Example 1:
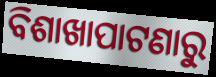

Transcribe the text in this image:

ବିଶାଖାପାଟଣାରୁ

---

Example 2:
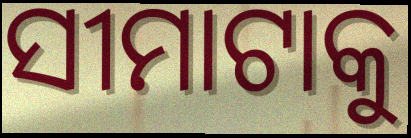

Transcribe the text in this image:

ସୀମାଟାକୁ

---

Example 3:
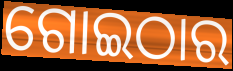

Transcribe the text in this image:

ଗୋଇଠାର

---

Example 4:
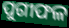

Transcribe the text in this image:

ପୁଗୀଫଳ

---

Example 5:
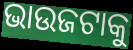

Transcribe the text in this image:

ଭାଉଜଟାକୁ